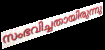
സംഭവിച്ചതായിരുന്നു